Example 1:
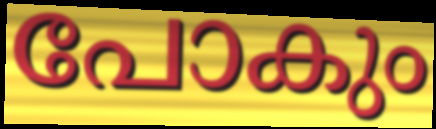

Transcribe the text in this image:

പോകും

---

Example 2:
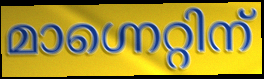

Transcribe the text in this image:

മാഗ്നെറ്റിന്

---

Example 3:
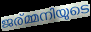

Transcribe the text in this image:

ജര്മ്മനിയുടെ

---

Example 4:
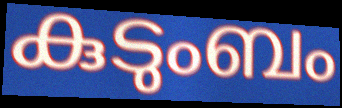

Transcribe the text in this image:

കുടുംബം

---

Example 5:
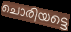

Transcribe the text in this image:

ചൊരിയട്ടെ